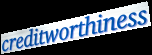
creditworthiness